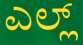
ಎಲ್ಲ್